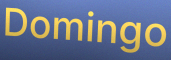
Domingo